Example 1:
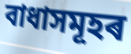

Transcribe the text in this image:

বাধাসমূহৰ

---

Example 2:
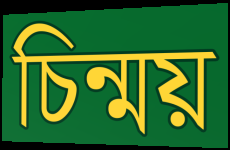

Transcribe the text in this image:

চিন্ময়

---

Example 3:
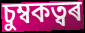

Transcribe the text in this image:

চুম্বকত্বৰ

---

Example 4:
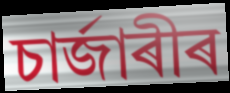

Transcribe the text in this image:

চাৰ্জাৰীৰ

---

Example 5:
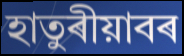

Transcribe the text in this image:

হাতুৰীয়াবৰ